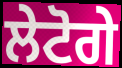
ਲੇਟੋਗੇ